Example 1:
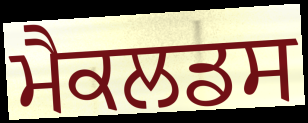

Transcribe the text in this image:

ਮੈਕਲਡਸ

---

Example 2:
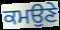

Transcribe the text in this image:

ਕਮਉਣੇ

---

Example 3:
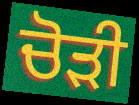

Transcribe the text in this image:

ਚੋੜੀ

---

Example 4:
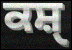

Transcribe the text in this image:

ਕਸ਼ੑ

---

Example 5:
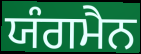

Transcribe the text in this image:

ਯੰਗਮੈਨ